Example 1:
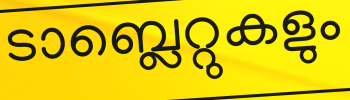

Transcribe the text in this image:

ടാബ്ലെറ്റുകളും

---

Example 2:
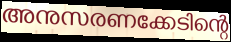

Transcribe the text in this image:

അനുസരണക്കേടിന്റെ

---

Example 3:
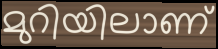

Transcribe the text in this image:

മുറിയിലാണ്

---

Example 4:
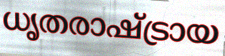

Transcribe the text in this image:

ധൃതരാഷ്ട്രായ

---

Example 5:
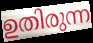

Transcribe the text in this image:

ഉതിരുന്ന